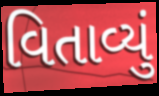
વિતાવ્યું